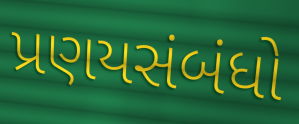
પ્રણયસંબંધો